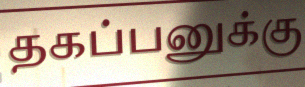
தகப்பனுக்கு